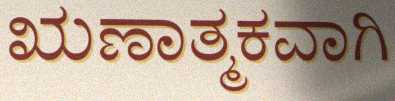
ಋಣಾತ್ಮಕವಾಗಿ